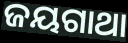
ଜୟଗାଥା